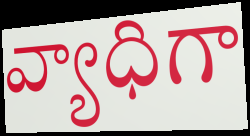
వ్యాధిగా